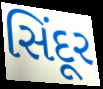
સિંદૂર